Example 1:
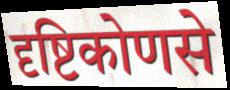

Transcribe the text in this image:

दृष्टिकोणसे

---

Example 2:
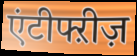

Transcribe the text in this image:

एंटीफ्ऱीज़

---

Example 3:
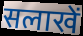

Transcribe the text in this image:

सलाखें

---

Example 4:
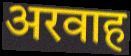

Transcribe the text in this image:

अरवाह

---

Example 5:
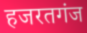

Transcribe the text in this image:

हजरतगंज